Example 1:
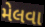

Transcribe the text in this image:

મેલવા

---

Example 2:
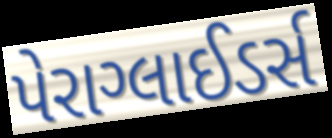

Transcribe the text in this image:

પેરાગ્લાઈડર્સ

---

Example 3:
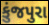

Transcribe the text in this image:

કુંજપુરા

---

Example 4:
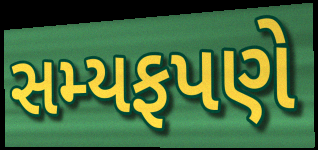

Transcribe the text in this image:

સમ્યફપણે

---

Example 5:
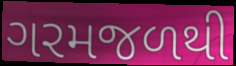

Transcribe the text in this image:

ગરમજળથી